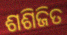
ଶଶିଜିତ